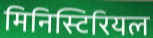
मिनिस्टिरियल